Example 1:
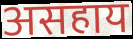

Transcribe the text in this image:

असहाय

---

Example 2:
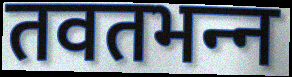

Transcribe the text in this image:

तवतभन्न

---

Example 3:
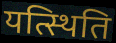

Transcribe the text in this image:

यत्स्थिति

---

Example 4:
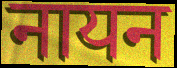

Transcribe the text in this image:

नायन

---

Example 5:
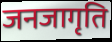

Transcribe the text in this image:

जनजागृति